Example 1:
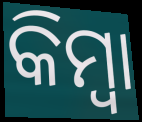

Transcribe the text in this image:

କିମ୍ଵା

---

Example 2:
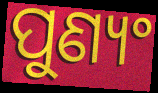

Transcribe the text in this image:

ପୁଣ୍ୟଂ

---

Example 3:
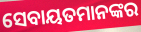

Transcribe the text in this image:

ସେବାୟତମାନଙ୍କର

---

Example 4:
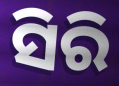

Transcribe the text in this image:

ସିରି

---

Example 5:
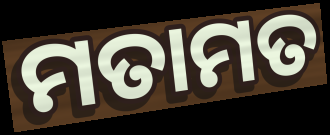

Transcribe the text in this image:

ମତାମତ